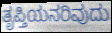
ತೃಪ್ತಿಯನರಿವುದು